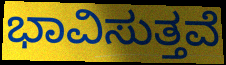
ಭಾವಿಸುತ್ತವೆ